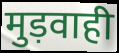
मुड़वाही